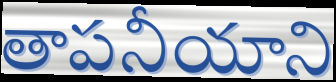
తాపనీయాని